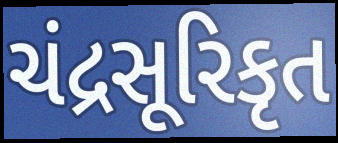
ચંદ્રસૂરિકૃત